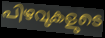
പിഴവുകളുടെ